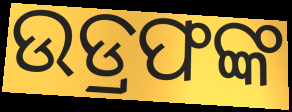
ଉଡ୍ରଫଙ୍କ